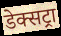
डेक्सट्रा